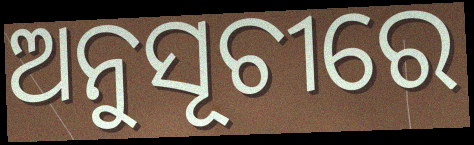
ଅନୁସୂଚୀରେ